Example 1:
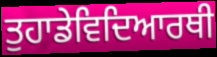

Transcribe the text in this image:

ਤੁਹਾਡੇਵਿਦਿਆਰਥੀ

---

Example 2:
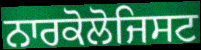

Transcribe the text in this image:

ਨਾਰਕੋਲੋਜਿਸਟ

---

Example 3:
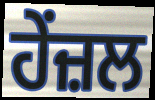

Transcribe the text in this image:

ਹੇਂਜ਼ਲ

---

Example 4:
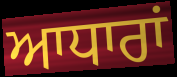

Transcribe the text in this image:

ਆਧਾਰਾਂ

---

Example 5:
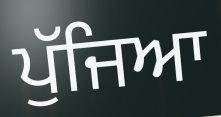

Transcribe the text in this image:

ਪੁੱਜਿਆ